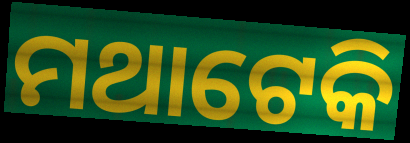
ମଥାଟେକି